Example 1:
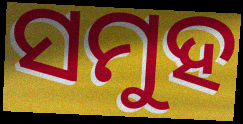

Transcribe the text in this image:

ସମୁହ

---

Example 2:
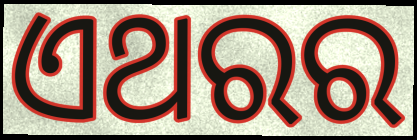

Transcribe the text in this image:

ଏଥରର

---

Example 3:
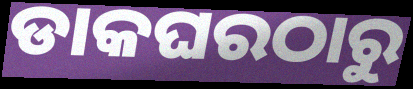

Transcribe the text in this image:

ଡାକଘରଠାରୁ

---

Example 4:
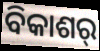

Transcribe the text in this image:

ବିକାଶର୍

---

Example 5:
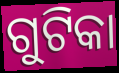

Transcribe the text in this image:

ଗୁଟିକା